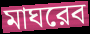
মাঘরেব